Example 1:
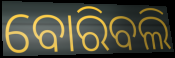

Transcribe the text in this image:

ବୋରିବଲି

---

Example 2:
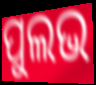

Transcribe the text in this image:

ପୁଲଭ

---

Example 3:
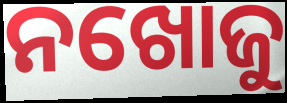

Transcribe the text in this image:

ନଖୋଜୁ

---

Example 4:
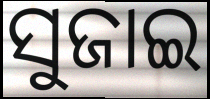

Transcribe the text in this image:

ସୁଜାଇ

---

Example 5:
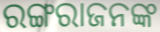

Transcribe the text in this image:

ରଙ୍ଗରାଜନଙ୍କ